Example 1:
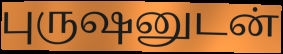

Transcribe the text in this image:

புருஷனுடன்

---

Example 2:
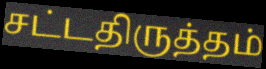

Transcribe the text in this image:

சட்டதிருத்தம்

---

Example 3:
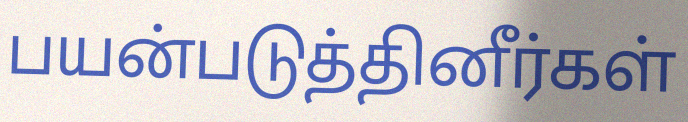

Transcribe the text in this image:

பயன்படுத்தினீர்கள்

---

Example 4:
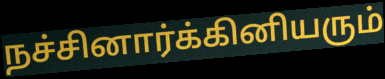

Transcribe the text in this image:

நச்சினார்க்கினியரும்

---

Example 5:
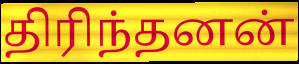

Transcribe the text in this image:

திரிந்தனன்